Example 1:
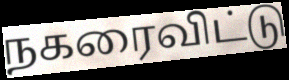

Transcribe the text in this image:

நகரைவிட்டு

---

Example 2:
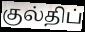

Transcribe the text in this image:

குல்திப்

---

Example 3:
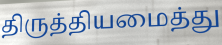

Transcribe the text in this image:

திருத்தியமைத்து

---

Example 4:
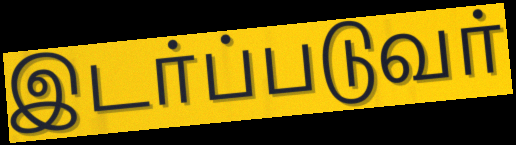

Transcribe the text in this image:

இடர்ப்படுவர்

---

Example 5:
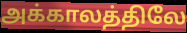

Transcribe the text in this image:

அக்காலத்திலே